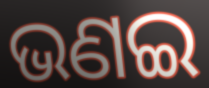
ଭଣଇ